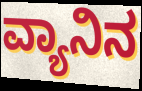
ವ್ಯಾನಿನ